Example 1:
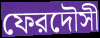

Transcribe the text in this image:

ফেরদৌসী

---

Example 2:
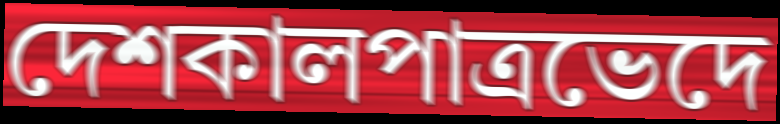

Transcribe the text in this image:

দেশকালপাত্রভেদে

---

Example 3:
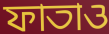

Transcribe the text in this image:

ফাতাও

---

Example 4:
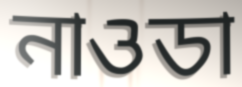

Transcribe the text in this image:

নাওডা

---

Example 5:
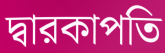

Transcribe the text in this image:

দ্বারকাপতি